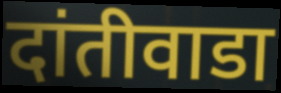
दांतीवाडा